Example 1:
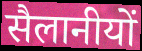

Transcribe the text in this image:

सैलानीयों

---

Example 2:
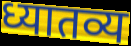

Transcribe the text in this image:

ध्यातव्य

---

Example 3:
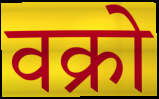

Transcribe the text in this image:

वक्रो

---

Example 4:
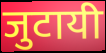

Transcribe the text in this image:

जुटायी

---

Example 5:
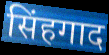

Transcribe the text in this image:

सिंहगाद